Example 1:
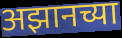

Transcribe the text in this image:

अझानच्या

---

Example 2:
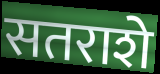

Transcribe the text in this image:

सतराशे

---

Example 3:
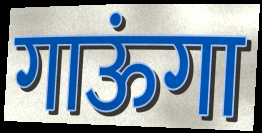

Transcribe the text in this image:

गाऊंगा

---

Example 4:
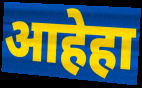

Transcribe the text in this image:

आहेहा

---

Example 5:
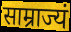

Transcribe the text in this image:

साम्राज्यं